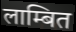
लाम्बित